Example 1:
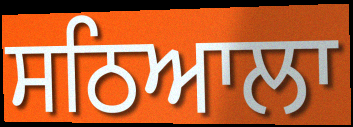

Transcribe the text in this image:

ਸਠਿਆਲਾ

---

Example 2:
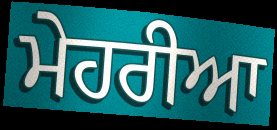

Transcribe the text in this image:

ਮੇਹਰੀਆ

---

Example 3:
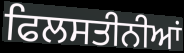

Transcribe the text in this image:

ਫਿਲਸਤੀਨੀਆਂ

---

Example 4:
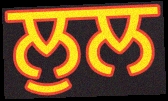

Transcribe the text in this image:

ਲੁਲ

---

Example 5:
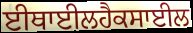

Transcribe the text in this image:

ਈਥਾਈਲਹੈਕਸਾਈਲ